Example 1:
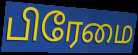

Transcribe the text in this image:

பிரேமை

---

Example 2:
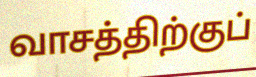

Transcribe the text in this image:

வாசத்திற்குப்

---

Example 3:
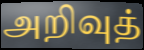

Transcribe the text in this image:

அறிவுத்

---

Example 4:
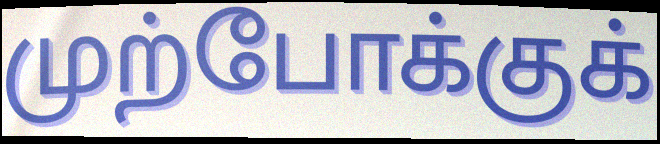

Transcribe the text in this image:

முற்போக்குக்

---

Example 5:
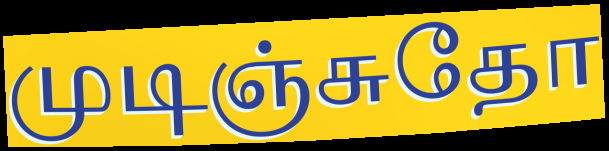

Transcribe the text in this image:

முடிஞ்சுதோ